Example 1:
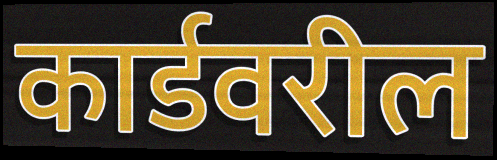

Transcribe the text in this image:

कार्डवरील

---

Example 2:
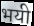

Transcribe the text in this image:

भयी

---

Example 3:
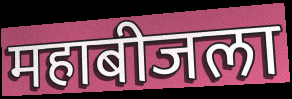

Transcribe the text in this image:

महाबीजला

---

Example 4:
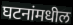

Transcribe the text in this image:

घटनांमधील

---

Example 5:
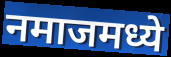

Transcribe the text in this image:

नमाजमध्ये